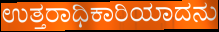
ಉತ್ತರಾಧಿಕಾರಿಯಾದನು